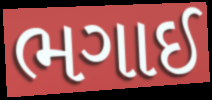
ભગાઈ